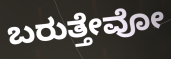
ಬರುತ್ತೇವೋ